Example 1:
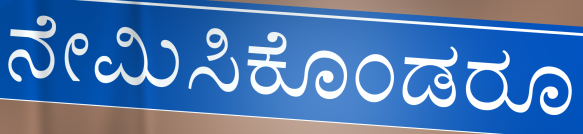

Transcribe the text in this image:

ನೇಮಿಸಿಕೊಂಡರೂ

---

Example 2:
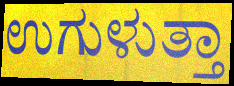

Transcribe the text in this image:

ಉಗುಳುತ್ತಾ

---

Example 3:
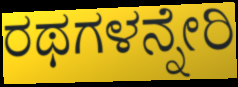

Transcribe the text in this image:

ರಥಗಳನ್ನೇರಿ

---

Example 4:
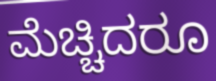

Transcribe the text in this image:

ಮೆಚ್ಚಿದರೂ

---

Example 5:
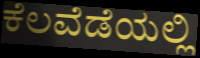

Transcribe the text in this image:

ಕೆಲವೆಡೆಯಲ್ಲಿ